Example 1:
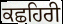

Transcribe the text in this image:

ਕਛਹਿਰੀ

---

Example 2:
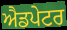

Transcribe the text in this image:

ਐਡਪੇਟਰ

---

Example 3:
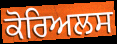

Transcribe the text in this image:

ਕੋਰਿਅਲਸ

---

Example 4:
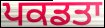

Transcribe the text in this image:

ਪਕਡਤਾ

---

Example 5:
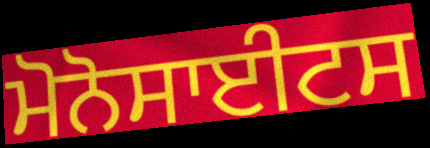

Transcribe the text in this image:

ਮੋਨੋਸਾਈਟਸ